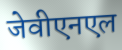
जेवीएनएल